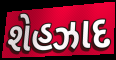
શેહઝાદ